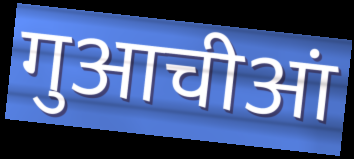
गुआचीआं